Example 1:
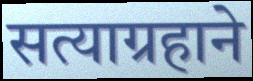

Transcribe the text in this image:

सत्याग्रहाने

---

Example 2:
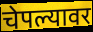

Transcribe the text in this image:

चेपल्यावर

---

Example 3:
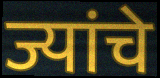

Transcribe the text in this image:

ज्यांचे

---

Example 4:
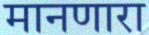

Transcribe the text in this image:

मानणारा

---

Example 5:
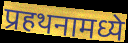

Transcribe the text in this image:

प्रहथनामध्ये